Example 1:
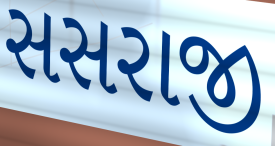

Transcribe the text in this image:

સસરાજી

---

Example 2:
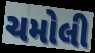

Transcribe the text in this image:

ચમોલી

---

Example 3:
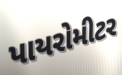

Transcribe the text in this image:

પાયરોમીટર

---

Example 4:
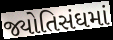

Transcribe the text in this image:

જ્યોતિસંઘમાં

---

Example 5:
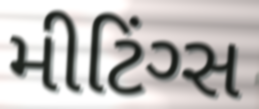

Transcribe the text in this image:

મીટિંગ્સ